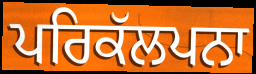
ਪਰਿਕੱਲਪਨਾ